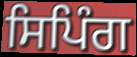
ਸਿਪਿੰਗ